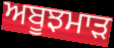
ਅਬੂਝਮਾੜ